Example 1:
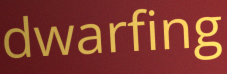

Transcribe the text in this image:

dwarfing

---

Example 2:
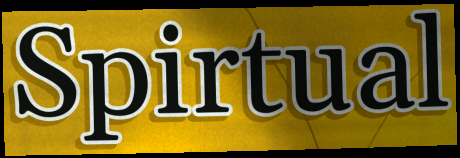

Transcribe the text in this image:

Spirtual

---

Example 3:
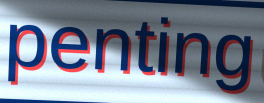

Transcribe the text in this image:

penting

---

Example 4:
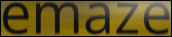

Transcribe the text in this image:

emaze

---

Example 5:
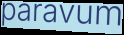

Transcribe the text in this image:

paravum